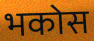
भकोस